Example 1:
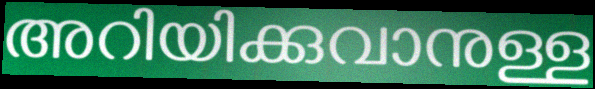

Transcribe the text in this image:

അറിയിക്കുവാനുള്ള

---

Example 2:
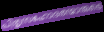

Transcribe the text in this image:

പിതൃസഹോദരന്മാരുടെ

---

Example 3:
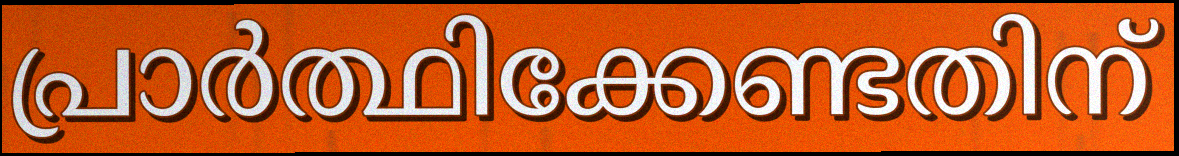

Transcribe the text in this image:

പ്രാർത്ഥിക്കേണ്ടതിന്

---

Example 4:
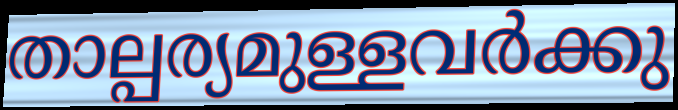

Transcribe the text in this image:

താല്പര്യമുള്ളവർക്കു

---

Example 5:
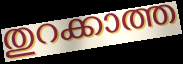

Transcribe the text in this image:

തുറക്കാത്ത